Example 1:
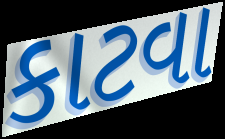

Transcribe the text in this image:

કાટવા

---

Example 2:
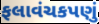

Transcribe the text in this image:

ફલાવંચકપણું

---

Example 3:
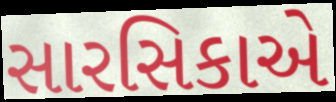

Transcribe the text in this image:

સારસિકાએ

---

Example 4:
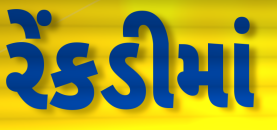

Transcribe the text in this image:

રેંકડીમાં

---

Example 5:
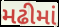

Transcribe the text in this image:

મઢીમાં